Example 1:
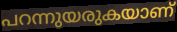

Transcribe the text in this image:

പറന്നുയരുകയാണ്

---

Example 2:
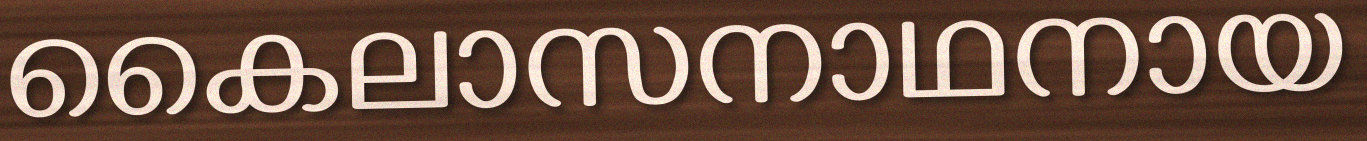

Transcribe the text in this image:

കൈലാസനാഥനായ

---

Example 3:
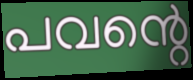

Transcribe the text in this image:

പവന്റെ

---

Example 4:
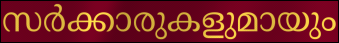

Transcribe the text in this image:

സർക്കാരുകളുമായും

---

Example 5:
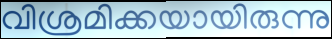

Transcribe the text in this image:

വിശ്രമിക്കയായിരുന്നു